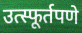
उत्स्फूर्तपणे